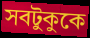
সবটুকুকে